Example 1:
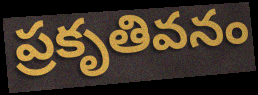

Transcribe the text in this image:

ప్రకృతివనం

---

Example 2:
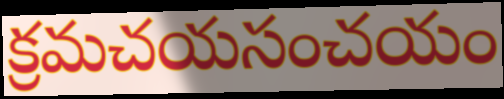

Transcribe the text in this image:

క్రమచయసంచయం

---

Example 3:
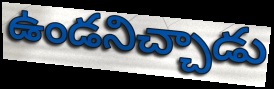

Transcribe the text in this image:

ఉండనిచ్చాడు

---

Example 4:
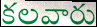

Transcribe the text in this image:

కలవారు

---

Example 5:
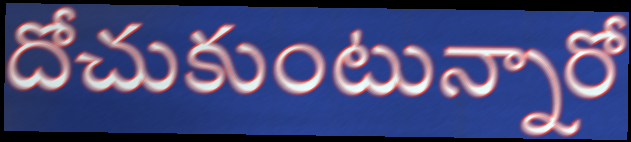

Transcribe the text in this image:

దోచుకుంటున్నారో